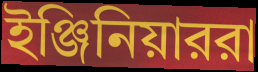
ইঞ্জিনিয়াররা